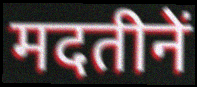
मदतीनें